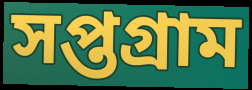
সপ্তগ্রাম